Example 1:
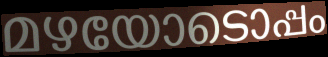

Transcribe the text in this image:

മഴയോടൊപ്പം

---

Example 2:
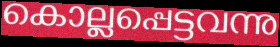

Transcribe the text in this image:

കൊല്ലപ്പെട്ടവന്നു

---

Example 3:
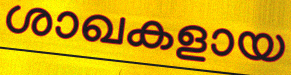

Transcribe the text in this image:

ശാഖകളായ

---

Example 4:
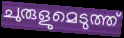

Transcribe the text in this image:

ചുരുളുമെടുത്ത്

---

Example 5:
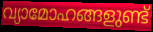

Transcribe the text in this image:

വ്യാമോഹങ്ങളുണ്ട്